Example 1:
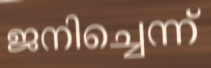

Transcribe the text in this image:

ജനിച്ചെന്ന്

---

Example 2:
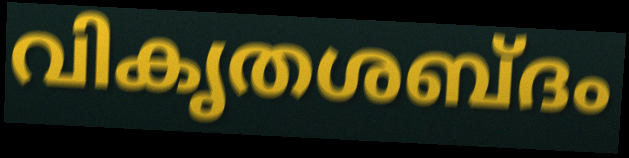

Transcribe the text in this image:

വികൃതശബ്ദം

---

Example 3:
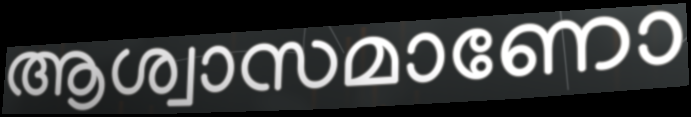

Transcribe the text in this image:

ആശ്വാസമാണോ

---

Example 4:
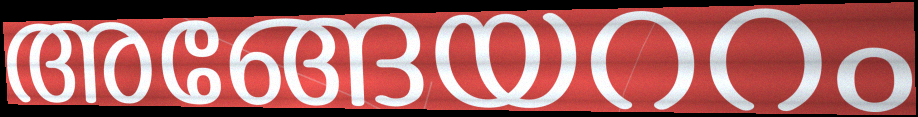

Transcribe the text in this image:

അങ്ങേയററം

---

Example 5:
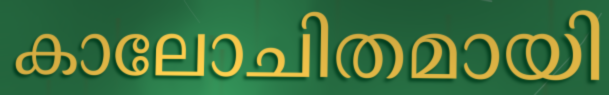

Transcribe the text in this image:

കാലോചിതമായി